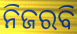
ନିଜରବି